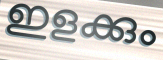
ഇളക്കും